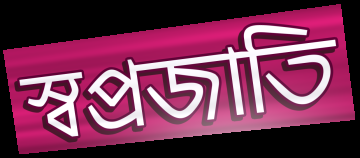
স্বপ্রজাতি